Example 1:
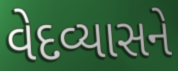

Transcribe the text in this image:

વેદવ્યાસને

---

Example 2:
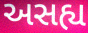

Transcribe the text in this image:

અસહ્ય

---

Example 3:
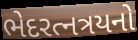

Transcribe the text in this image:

ભેદરત્નત્રયનો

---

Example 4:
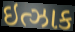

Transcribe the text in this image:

ઇત્ઝાક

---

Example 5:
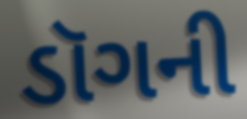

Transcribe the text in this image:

ડૉગની